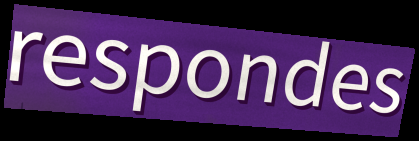
respondes